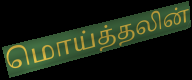
மொய்த்தலின்